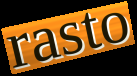
rasto